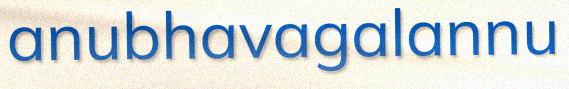
anubhavagalannu